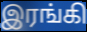
இரங்கி